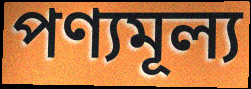
পণ্যমূল্য